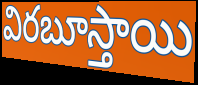
విరబూస్తాయి